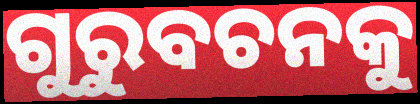
ଗୁରୁବଚନକୁ